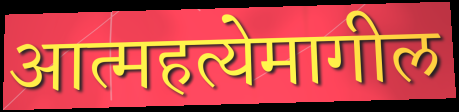
आत्महत्येमागील